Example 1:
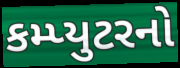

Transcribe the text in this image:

કમ્પ્યુટરનો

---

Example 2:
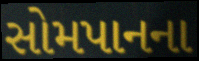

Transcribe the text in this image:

સોમપાનના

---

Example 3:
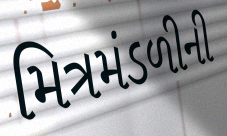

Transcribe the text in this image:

મિત્રમંડળીની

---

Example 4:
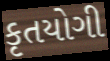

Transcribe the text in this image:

કૃતયોગી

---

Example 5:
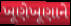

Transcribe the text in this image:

ખૂણેખૂણાને